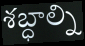
శబ్ధాల్ని